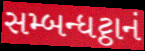
સમ્બન્ધટ્ઠાનં